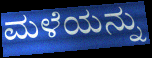
ಮಳೆಯನ್ನು